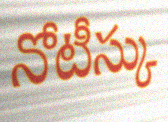
నోటీస్కు